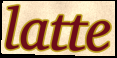
latte